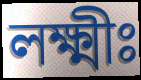
লক্ষ্মীঃ